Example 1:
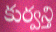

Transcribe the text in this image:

కుర్వన్తి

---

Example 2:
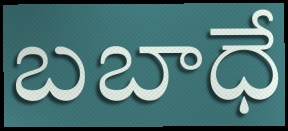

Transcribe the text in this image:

బబాధే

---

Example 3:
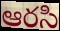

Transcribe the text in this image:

ఆరసి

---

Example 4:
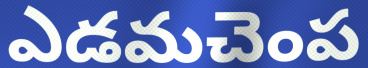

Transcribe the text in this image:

ఎడమచెంప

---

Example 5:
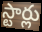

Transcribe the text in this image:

స్టార్లు